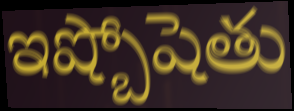
ఇష్బోషెతు